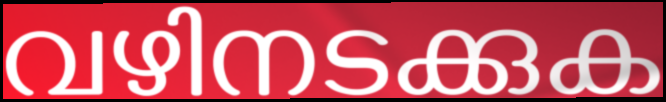
വഴിനടക്കുക